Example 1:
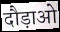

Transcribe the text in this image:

दौड़ाओ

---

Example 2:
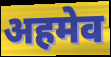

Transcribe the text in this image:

अहमेव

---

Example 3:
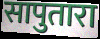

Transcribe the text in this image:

सापुतारा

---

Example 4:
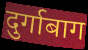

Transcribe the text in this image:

दुर्गाबाग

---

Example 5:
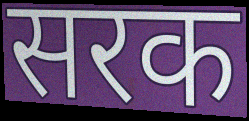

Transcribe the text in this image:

सरक